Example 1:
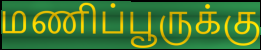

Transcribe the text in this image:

மணிப்பூருக்கு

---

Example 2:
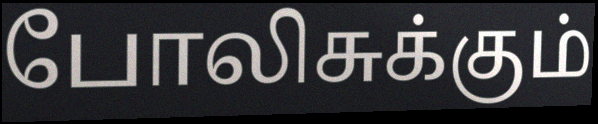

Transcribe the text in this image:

போலிசுக்கும்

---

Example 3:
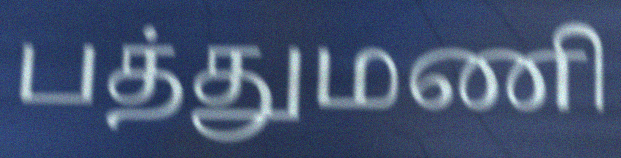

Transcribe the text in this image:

பத்துமணி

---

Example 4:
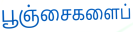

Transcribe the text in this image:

பூஞ்சைகளைப்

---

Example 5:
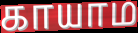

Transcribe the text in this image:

காயாம